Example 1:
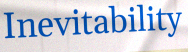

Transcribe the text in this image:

Inevitability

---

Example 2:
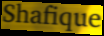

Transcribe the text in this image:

Shafique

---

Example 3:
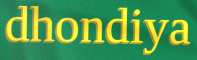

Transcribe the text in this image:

dhondiya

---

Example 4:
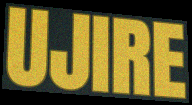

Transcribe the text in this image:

UJIRE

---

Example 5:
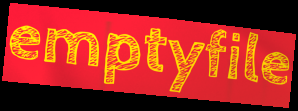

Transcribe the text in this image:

emptyfile